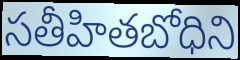
సతీహితబోధిని